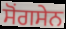
ਸੋਂਗਸੇਨ